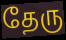
தேரு